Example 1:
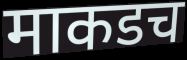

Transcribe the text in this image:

माकडच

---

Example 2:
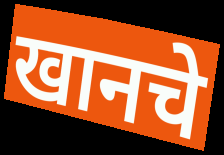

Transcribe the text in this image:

खानचे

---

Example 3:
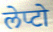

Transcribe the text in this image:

लेप्टो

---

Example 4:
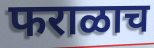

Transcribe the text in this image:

फराळाच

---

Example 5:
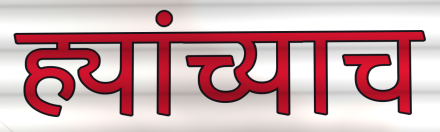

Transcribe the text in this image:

ह्यांच्याच